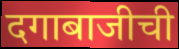
दगाबाजीची